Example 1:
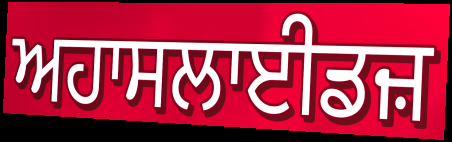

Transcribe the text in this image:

ਅਹਾਸਲਾਈਡਜ਼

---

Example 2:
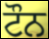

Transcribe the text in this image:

ਟੌਨ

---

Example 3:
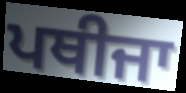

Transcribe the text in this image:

ਪਥੀਜਾ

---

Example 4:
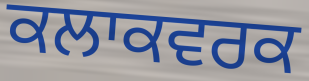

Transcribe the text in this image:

ਕਲਾਕਵਰਕ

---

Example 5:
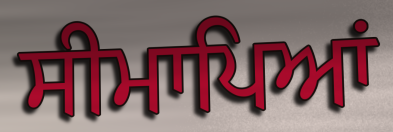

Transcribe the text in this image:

ਸੀਮਾਪਿਆਂ